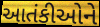
આતંકીઓને